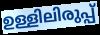
ഉള്ളിലിരുപ്പ്